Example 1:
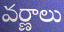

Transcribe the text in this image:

వర్ణాలు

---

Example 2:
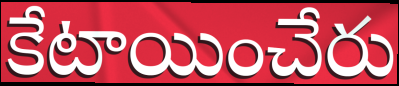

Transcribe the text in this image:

కేటాయించేరు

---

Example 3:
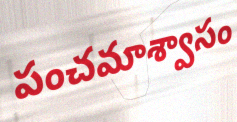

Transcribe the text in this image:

పంచమాశ్వాసం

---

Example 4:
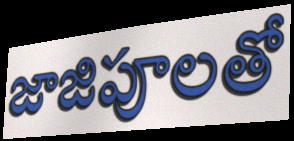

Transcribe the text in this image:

జాజిపూలతో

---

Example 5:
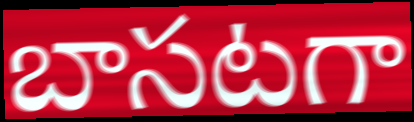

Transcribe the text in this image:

బాసటగా